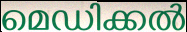
മെഡിക്കൽ